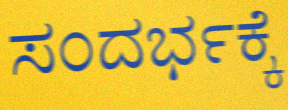
ಸಂದರ್ಭಕ್ಕೆ